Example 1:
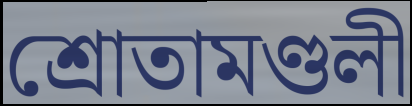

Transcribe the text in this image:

শ্রোতামণ্ডলী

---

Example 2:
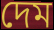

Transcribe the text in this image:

দেম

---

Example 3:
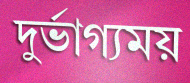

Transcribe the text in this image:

দুর্ভাগ্যময়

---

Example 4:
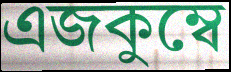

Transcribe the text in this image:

এজকুম্বে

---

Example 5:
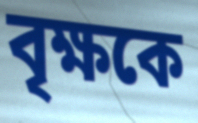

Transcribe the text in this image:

বৃক্ষকে